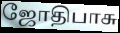
ஜோதிபாசு